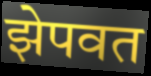
झेपवत